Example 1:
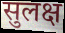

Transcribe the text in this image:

सुलक्ष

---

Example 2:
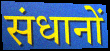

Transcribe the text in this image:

संधानों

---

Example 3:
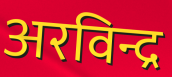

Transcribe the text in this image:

अरविन्द्र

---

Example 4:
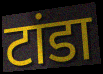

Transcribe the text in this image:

टांडा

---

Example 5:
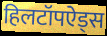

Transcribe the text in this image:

हिलटॉपऐड्स